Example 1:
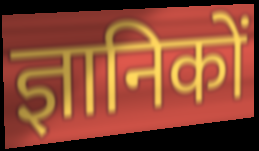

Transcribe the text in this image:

ज्ञानिकों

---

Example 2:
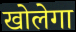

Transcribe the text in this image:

खोलेगा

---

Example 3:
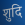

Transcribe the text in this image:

शुदि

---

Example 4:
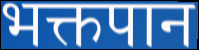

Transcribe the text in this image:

भक्तपान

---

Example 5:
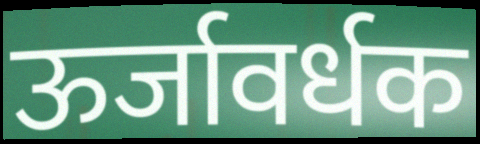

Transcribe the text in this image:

ऊर्जावर्धक